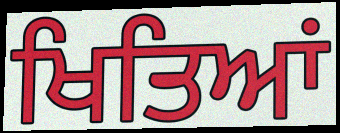
ਖਿਤਿਆਂ